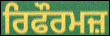
ਰਿਫੌਰਮਜ਼